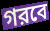
গরবে